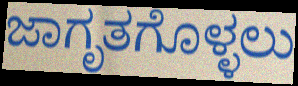
ಜಾಗೃತಗೊಳ್ಳಲು